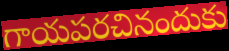
గాయపరచినందుకు